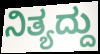
ನಿತ್ಯದ್ದು